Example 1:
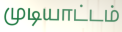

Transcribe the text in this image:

முடியாட்டம்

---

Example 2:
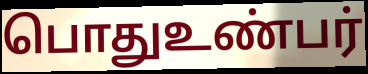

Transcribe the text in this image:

பொதுஉண்பர்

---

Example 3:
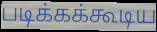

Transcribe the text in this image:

படிக்கக்கூடிய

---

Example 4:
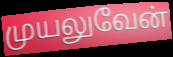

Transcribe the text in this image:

முயலுவேன்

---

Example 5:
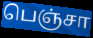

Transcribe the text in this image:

பெஞ்சா